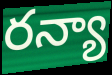
రన్యా